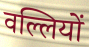
वल्लियों